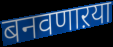
बनवणाऱया